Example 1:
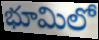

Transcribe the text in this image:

భూమిలో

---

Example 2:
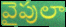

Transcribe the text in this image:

వైపులా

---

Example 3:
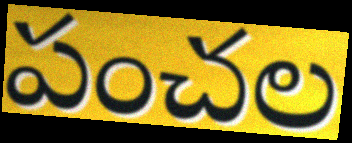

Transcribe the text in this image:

పంచల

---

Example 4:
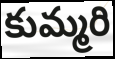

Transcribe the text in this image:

కుమ్మరి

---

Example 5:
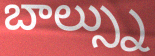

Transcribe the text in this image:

బాల్స్ను